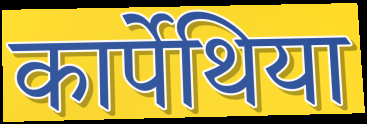
कार्पेथिया